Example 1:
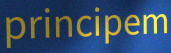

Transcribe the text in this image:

principem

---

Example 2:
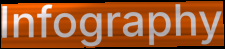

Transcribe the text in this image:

Infography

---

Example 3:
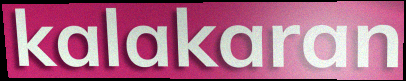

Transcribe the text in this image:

kalakaran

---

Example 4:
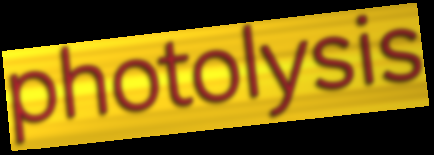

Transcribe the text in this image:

photolysis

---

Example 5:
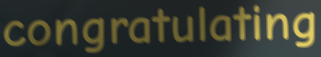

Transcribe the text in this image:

congratulating